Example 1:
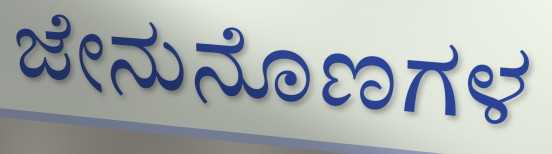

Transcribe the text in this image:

ಜೇನುನೊಣಗಳ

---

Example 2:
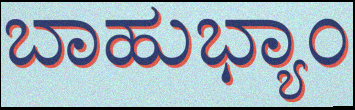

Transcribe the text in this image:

ಬಾಹುಭ್ಯಾಂ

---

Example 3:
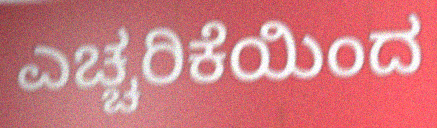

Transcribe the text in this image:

ಎಚ್ಚರಿಕೆಯಿಂದ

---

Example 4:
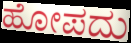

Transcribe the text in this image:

ಹೋಪದು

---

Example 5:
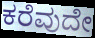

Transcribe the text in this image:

ಕರೆವುದೇ